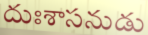
దుఃశాసనుడు